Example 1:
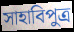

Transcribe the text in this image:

সাহাবিপুত্র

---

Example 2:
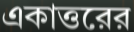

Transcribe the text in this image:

একাত্তরের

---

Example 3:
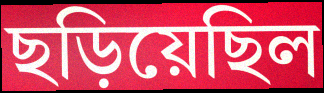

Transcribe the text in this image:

ছড়িয়েছিল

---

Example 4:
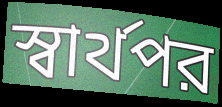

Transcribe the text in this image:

স্বার্থপর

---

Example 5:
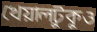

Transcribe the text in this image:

খেয়ালটুকুও